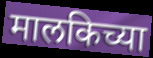
मालकिच्या